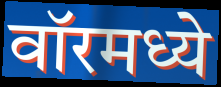
वॉरमध्ये